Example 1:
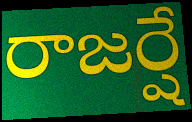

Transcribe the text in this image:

రాజర్షే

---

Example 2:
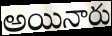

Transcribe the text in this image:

అయినారు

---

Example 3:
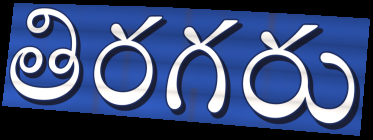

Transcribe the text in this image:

తిరగరు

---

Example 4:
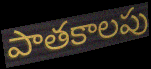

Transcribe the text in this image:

పాతకాలపు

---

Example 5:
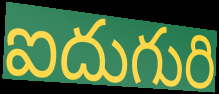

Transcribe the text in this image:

ఐదుగురి